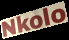
Nkolo